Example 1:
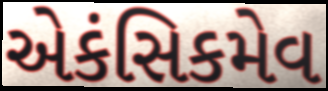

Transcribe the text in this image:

એકંસિકમેવ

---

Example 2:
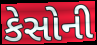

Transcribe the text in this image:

કેસોની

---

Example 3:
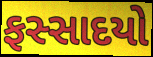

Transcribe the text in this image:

ફસ્સાદયો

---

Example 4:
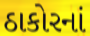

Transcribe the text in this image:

ઠાકોરનાં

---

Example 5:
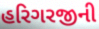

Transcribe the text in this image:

હરિગરજીની